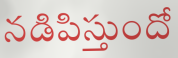
నడిపిస్తుందో